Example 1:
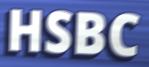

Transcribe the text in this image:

HSBC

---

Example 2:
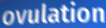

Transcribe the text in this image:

ovulation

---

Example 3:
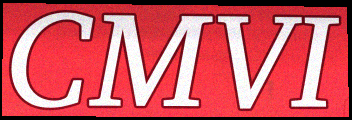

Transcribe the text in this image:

CMVI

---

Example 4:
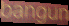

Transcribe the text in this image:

bangun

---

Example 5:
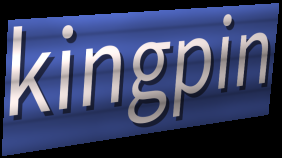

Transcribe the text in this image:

kingpin